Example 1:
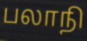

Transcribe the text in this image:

பலாநி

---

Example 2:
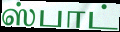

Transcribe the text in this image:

ஸ்பாட்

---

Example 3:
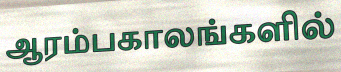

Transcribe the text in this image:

ஆரம்பகாலங்களில்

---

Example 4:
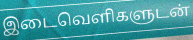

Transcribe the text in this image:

இடைவெளிகளுடன்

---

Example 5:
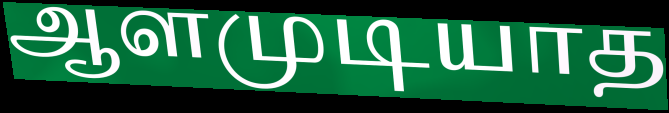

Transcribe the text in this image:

ஆளமுடியாத